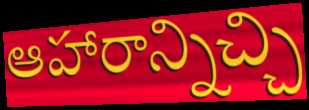
ఆహారాన్నిచ్చి